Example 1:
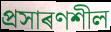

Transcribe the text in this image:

প্ৰসাৰণশীল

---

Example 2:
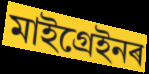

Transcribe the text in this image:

মাইগ্ৰেইনৰ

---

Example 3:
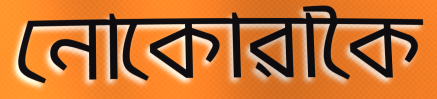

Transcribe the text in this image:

নোকোৱাকৈ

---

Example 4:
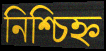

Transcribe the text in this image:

নিশ্চিহ্ন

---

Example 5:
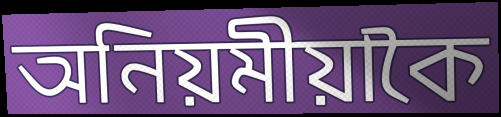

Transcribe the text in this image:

অনিয়মীয়াকৈ